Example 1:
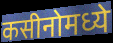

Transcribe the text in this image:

कसीनोमध्ये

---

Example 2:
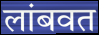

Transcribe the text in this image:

लांबवत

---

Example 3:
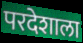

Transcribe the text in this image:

परदेशाला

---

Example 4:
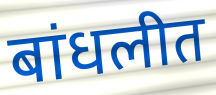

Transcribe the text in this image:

बांधलीत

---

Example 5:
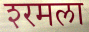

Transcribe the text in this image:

श्रमला